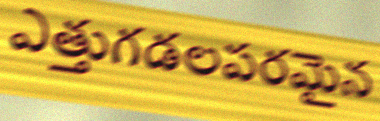
ఎత్తుగడలపరమైన